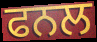
ਫਨਲ